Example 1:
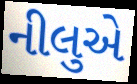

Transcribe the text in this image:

નીલુએ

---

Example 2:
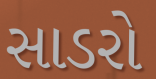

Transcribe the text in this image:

સાડરો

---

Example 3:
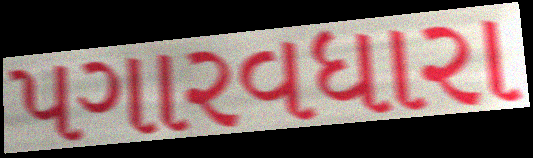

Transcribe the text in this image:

પગારવધારા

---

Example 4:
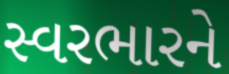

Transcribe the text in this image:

સ્વરભારને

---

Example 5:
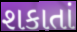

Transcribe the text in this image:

શકાતાં